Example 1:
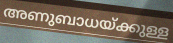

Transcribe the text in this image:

അണുബാധയ്ക്കുള്ള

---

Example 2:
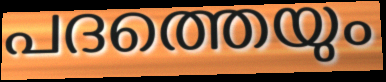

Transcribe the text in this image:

പദത്തെയും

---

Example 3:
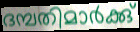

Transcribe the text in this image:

ദമ്പതിമാർക്കു്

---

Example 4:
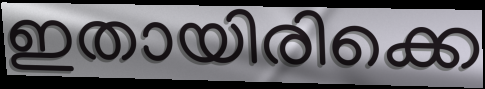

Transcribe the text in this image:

ഇതായിരിക്കെ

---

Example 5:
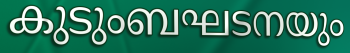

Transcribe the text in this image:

കുടുംബഘടനയും